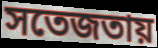
সতেজতায়